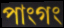
পাংগং